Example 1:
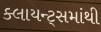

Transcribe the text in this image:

ક્લાયન્ટ્સમાંથી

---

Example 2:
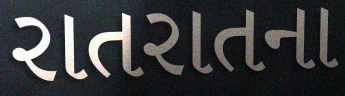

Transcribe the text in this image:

રાતરાતના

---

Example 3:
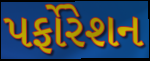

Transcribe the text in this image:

પર્ફોરેશન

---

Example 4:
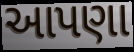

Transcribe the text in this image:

આપણા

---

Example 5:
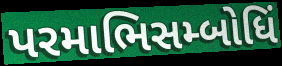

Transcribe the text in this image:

પરમાભિસમ્બોધિં